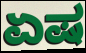
ಏಷ